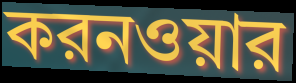
করনওয়ার